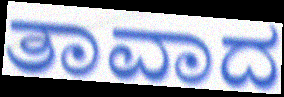
ತಾವಾದ